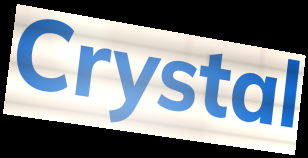
Crystal